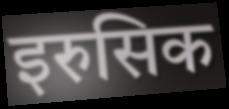
इरुसिक